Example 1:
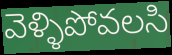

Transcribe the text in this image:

వెళ్ళిపోవలసి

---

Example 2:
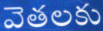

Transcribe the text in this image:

వెతలకు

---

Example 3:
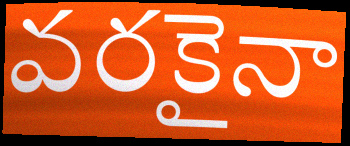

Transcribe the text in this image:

వరకైనా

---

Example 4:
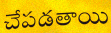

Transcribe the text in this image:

చేపడతాయి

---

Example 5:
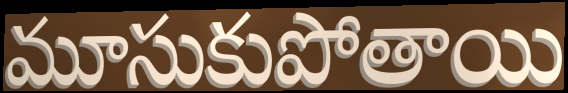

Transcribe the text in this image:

మూసుకుపోతాయి